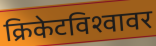
क्रिकेटविश्वावर